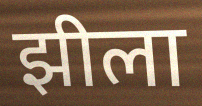
झीला